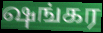
ஷங்கர